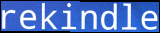
rekindle